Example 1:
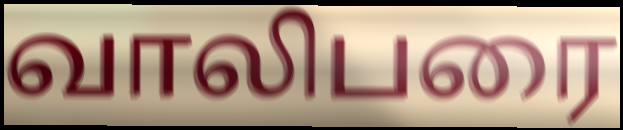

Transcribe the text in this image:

வாலிபரை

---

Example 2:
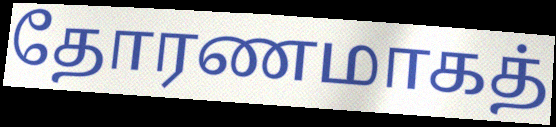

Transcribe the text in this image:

தோரணமாகத்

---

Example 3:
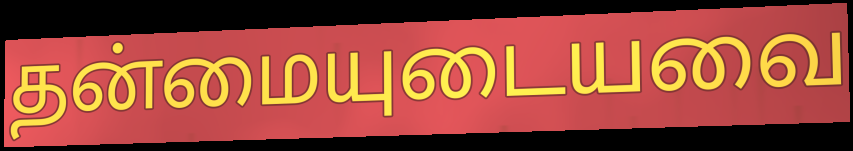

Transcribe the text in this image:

தன்மையுடையவை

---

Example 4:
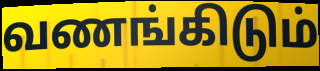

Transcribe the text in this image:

வணங்கிடும்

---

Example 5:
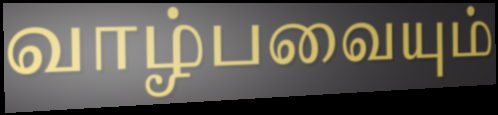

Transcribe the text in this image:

வாழ்பவையும்